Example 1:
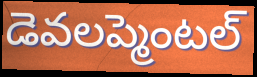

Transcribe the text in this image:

డెవలప్మెంటల్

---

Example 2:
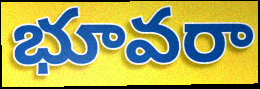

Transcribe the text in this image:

భూవరా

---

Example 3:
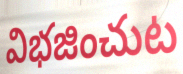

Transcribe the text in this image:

విభజించుట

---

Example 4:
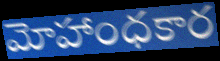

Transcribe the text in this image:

మోహాంధకార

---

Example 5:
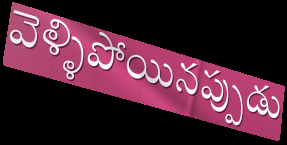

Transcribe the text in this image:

వెళ్ళిపోయినప్పుడు